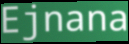
Ejnana